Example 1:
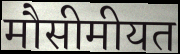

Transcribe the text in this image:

मौसीमीयत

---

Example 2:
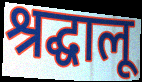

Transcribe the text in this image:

श्रद्घालू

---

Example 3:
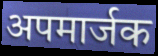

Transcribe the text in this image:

अपमार्जक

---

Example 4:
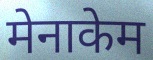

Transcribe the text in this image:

मेनाकेम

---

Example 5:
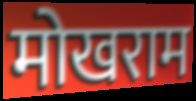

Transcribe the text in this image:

मोखराम